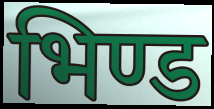
भिण्ड